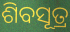
ଶିବସୂତ୍ର